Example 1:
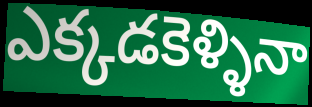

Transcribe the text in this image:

ఎక్కడకెళ్ళినా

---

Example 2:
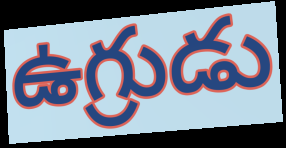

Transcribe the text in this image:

ఉగ్రుడు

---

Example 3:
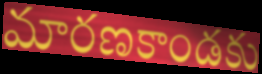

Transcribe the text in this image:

మారణకాండకు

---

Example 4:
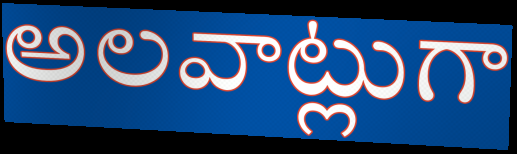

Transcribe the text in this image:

అలవాట్లుగా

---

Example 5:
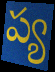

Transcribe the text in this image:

ప్య